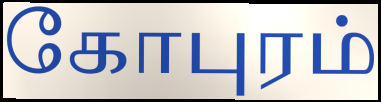
கோபுரம்